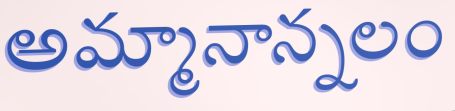
అమ్మానాన్నలం